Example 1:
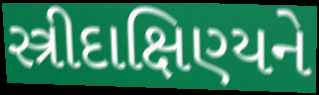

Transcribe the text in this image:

સ્ત્રીદાક્ષિણ્યને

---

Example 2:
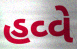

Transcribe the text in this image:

હવ્વે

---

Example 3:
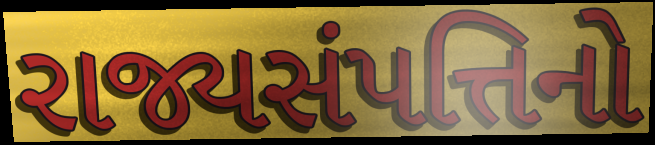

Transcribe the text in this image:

રાજ્યસંપત્તિનો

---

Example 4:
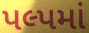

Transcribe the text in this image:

પલ્પમાં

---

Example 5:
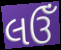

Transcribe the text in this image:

લઉઁ